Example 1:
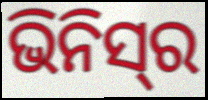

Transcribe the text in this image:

ଭିନିସ୍‌ର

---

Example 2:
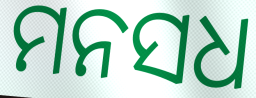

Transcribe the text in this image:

ମନସଧ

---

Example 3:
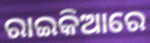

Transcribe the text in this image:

ରାଇକିଆରେ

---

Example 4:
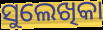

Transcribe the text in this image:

ସୁଲେଖିକା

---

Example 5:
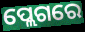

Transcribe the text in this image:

ପ୍ଲେଗରେ